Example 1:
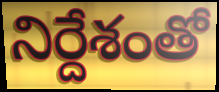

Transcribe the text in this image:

నిర్దేశంతో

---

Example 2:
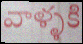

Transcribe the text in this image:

వాళ్ళకి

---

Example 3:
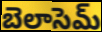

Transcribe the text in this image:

బెలాసెమ్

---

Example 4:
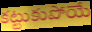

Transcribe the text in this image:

కట్టుకుపోయే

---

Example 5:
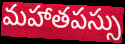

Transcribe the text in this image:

మహాతపస్సు